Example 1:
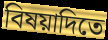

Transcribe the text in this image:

বিষয়াদিতে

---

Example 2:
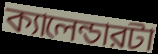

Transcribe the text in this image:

ক্যালেন্ডারটা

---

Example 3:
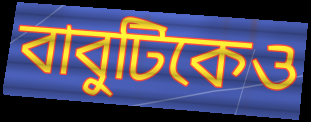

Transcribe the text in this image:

বাবুটিকেও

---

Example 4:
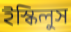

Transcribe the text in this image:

ইস্কিলুস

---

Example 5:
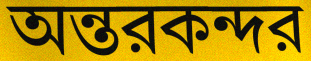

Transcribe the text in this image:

অন্তরকন্দর